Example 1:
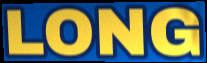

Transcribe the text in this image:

LONG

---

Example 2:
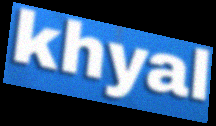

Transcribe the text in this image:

khyal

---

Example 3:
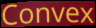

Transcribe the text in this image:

Convex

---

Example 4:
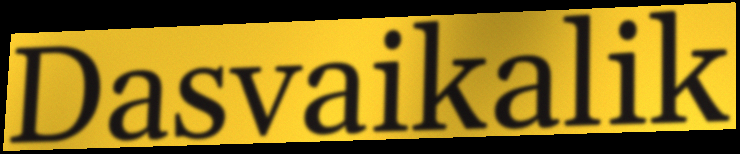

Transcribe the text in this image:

Dasvaikalik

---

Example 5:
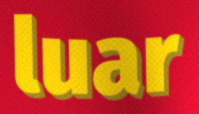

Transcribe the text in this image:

luar